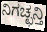
ನಿಗಚ್ಛನ್ತಿ